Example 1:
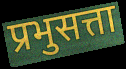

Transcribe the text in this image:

प्रभुसत्ता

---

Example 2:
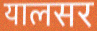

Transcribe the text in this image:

यालसर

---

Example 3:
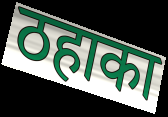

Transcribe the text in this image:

ठहाका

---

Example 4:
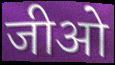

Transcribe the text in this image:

जीओ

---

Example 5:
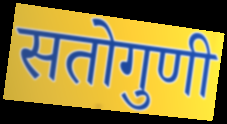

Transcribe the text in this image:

सतोगुणी